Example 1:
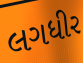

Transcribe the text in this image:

લગધીર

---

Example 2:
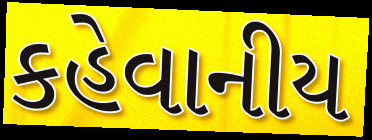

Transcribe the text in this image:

કહેવાનીય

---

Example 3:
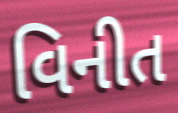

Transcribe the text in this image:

વિનીત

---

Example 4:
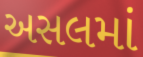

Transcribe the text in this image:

અસલમાં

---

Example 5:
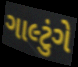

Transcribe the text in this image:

ગાલ્ટુંગે